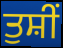
ਤੁਸ਼ੀਂ